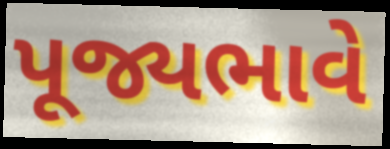
પૂજ્યભાવે